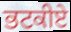
ਭਟਕੀਏ